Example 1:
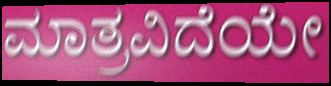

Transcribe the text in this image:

ಮಾತ್ರವಿದೆಯೇ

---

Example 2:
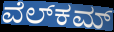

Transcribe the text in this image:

ವೆಲ್‍ಕಮ್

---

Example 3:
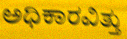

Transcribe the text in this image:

ಅಧಿಕಾರವಿತ್ತು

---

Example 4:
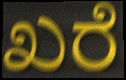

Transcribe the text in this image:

ಖರೆ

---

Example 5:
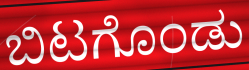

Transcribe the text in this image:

ಬಿಟಗೊಂಡು